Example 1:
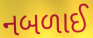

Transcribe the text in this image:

નબળાઈ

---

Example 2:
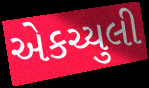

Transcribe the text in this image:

એકચ્યુલી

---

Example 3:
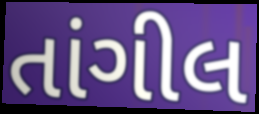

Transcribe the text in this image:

તાંગીલ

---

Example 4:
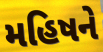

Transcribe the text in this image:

મહિષને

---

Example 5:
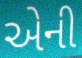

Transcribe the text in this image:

એની